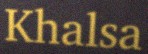
Khalsa